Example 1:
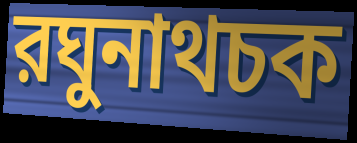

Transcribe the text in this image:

রঘুনাথচক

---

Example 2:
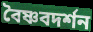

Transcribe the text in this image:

বৈষ্ণবদর্শন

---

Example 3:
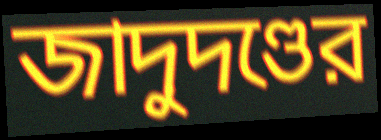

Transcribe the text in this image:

জাদুদণ্ডের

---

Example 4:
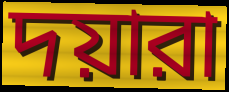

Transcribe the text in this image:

দয়ারা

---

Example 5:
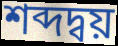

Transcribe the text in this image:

শব্দদ্বয়